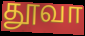
தூவா